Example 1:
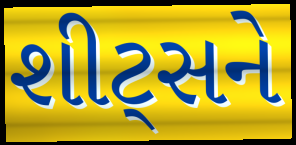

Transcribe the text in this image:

શીટ્સને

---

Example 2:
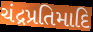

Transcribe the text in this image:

ચંદ્રપ્રતિમાદિ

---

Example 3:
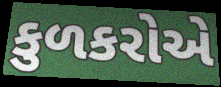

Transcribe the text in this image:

કુળકરોએ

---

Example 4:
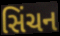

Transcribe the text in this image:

સિંચન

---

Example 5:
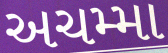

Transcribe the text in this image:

અચમ્મા